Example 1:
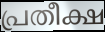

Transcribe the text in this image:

പ്രതീക്ഷ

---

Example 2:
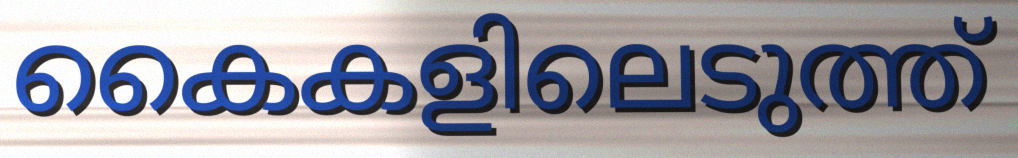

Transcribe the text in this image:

കൈകളിലെടുത്ത്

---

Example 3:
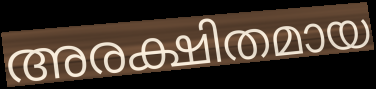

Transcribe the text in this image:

അരക്ഷിതമായ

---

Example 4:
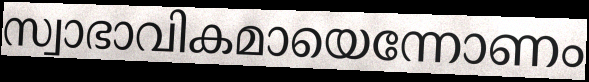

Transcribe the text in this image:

സ്വാഭാവികമായെന്നോണം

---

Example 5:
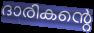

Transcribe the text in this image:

ദാരികന്റെ